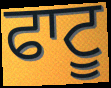
ਫਾਟੂ